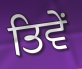
ਤਿਵੇਂ